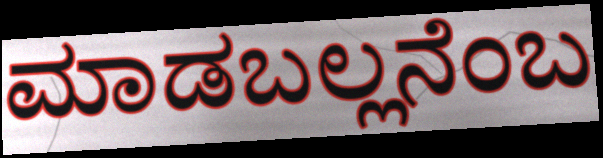
ಮಾಡಬಲ್ಲನೆಂಬ